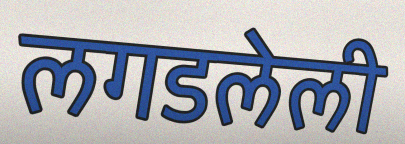
लगडलेली